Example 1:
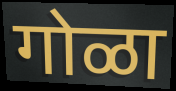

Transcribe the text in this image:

गोळा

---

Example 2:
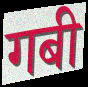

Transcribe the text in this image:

गबी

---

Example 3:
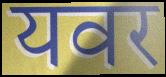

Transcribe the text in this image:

यवर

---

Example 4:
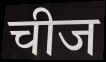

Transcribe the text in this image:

चीज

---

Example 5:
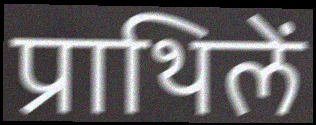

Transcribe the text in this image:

प्राथिलें